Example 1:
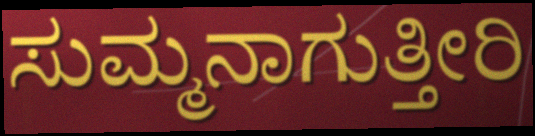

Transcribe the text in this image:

ಸುಮ್ಮನಾಗುತ್ತೀರಿ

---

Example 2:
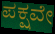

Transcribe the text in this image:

ಪಕ್ಷವೇ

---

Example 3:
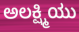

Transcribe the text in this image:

ಅಲಕ್ಷ್ಮಿಯು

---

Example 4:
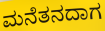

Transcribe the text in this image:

ಮನೆತನದಾಗ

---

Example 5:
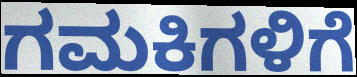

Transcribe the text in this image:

ಗಮಕಿಗಳಿಗೆ